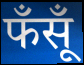
फँसूँ